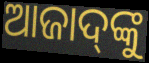
ଆଜାଦ୍‌ଙ୍କୁ